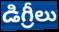
డిగ్రీలు